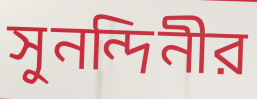
সুনন্দিনীর